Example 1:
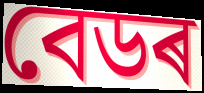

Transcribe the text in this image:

বেডৰ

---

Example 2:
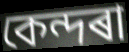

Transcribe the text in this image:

কেন্দৰা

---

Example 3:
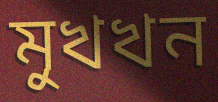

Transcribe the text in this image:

মুখখন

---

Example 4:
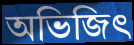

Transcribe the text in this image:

অভিজিৎ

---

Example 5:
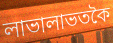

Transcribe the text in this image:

লাভালাভতকৈ